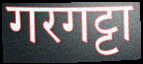
गरगट्टा